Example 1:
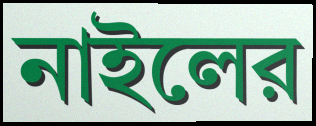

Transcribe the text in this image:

নাইলের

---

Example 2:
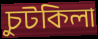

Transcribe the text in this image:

চুটকিলা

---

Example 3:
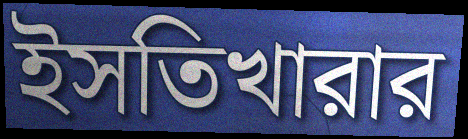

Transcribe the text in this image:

ইসতিখারার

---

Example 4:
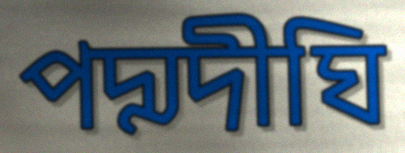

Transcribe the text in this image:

পদ্মদীঘি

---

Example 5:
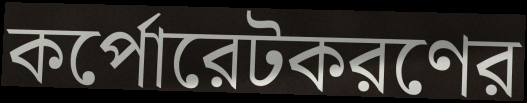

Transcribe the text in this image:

কর্পোরেটকরণের